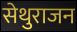
सेथुराजन